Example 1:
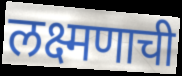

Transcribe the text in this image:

लक्ष्मणाची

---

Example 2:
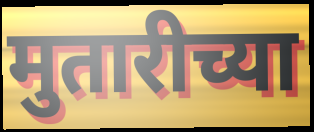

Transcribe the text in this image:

मुतारीच्या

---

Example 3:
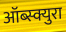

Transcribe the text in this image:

ऑब्स्क्युरा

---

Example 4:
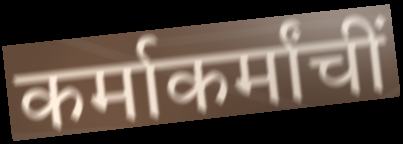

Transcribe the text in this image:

कर्माकर्मांचीं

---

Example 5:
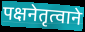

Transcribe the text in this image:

पक्षनेतृत्वाने